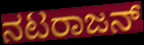
ನಟರಾಜನ್